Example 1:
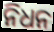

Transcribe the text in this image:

ନିଧନ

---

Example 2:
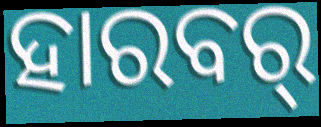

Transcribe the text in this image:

ହାରବର୍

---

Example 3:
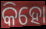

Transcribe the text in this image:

କିହୋ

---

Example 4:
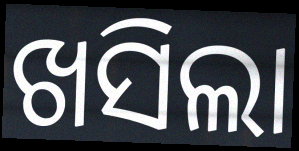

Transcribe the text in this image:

ଖସିଲା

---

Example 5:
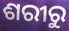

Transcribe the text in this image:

ଶରୀରୁ